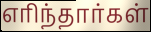
எரிந்தார்கள்